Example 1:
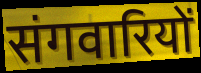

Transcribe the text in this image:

संगवारियों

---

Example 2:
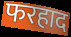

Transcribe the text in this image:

फरहाद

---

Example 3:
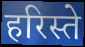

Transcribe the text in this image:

हरिस्ते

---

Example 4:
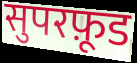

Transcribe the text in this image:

सुपरफ़ूड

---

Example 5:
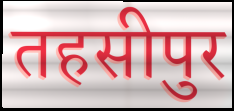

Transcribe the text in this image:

तहसीपुर